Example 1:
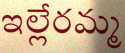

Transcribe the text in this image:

ఇల్లేరమ్మ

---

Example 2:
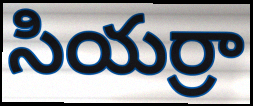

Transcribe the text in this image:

సియర్రా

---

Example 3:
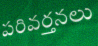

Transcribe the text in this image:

పరివర్తనలు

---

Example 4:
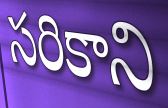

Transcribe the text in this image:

సరికాని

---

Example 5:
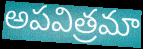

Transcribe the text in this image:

అపవిత్రమా